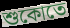
শুকোতে